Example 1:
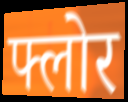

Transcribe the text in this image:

फ्लोर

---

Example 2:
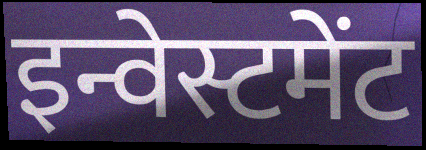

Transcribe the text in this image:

इन्वेस्टमेंट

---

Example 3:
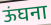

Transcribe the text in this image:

ऊंघना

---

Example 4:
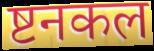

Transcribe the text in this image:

ष्टनकल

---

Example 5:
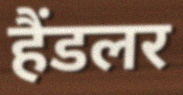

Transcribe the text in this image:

हैंडलर